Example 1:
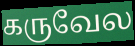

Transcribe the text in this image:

கருவேல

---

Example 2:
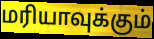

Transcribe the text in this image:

மரியாவுக்கும்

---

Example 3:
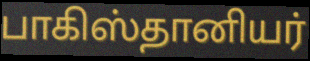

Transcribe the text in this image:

பாகிஸ்தானியர்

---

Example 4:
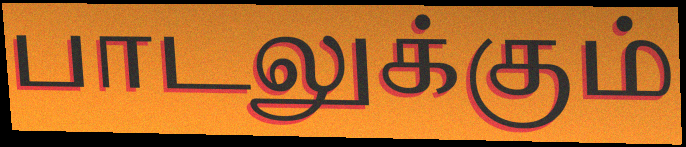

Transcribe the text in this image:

பாடலுக்கும்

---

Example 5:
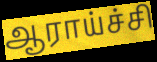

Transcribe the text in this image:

ஆராய்ச்சி